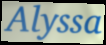
Alyssa